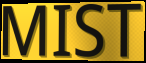
MIST